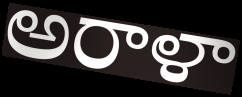
అరాళా